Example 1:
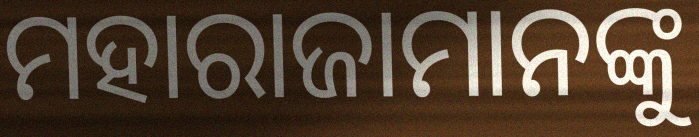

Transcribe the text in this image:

ମହାରାଜାମାନଙ୍କୁ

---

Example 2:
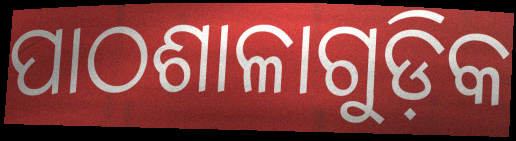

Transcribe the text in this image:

ପାଠଶାଳାଗୁଡ଼ିକ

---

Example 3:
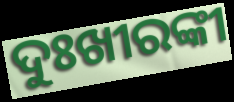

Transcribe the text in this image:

ଦୁଃଖୀରଙ୍କୀ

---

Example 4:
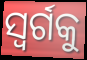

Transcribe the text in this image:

ସ୍ୱର୍ଗକୁ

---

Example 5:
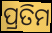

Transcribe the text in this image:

ପ୍ରତିମ